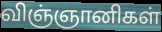
விஞ்ஞானிகள்